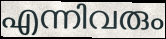
എന്നിവരും